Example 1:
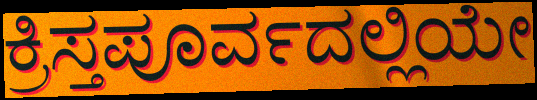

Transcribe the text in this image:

ಕ್ರಿಸ್ತಪೂರ್ವದಲ್ಲಿಯೇ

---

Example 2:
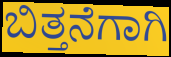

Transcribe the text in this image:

ಬಿತ್ತನೆಗಾಗಿ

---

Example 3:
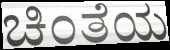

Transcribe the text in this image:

ಚಿಂತೆಯ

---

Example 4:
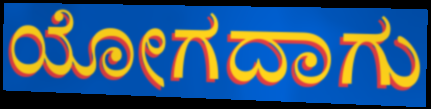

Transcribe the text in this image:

ಯೋಗದಾಗು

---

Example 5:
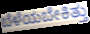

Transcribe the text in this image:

ಬೆಳೆಯಬೇಕಿತ್ತು